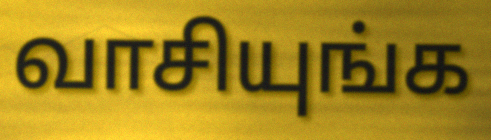
வாசியுங்க